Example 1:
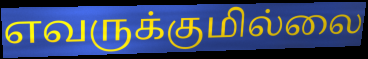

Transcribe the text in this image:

எவருக்குமில்லை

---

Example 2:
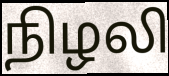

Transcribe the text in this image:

நிழலி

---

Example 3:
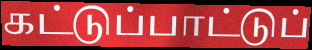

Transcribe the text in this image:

கட்டுப்பாட்டுப்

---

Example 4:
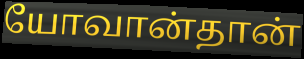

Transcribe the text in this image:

யோவான்தான்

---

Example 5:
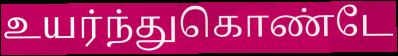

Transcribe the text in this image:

உயர்ந்துகொண்டே